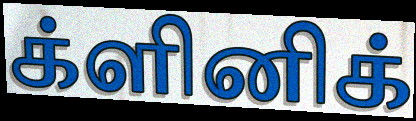
க்ளினிக்